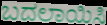
ಬದಲಾಯಿಸಿ